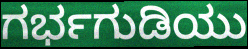
ಗರ್ಭಗುಡಿಯು